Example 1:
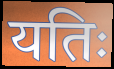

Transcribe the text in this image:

यतिः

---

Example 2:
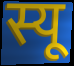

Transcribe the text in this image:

स्यू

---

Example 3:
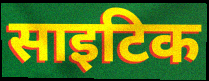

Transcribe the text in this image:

साइटिक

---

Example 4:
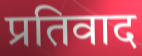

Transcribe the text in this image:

प्रतिवाद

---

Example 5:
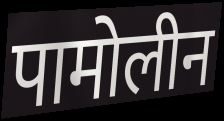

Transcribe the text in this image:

पामोलीन